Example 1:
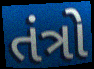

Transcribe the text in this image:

તંત્રો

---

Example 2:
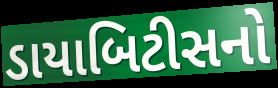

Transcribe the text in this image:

ડાયાબિટીસનો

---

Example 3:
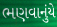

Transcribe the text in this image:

ભણવાનુંયે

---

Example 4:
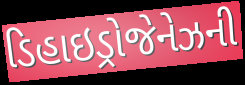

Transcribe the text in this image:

ડિહાઇડ્રોજેનેઝની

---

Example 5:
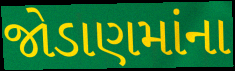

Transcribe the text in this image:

જોડાણમાંના